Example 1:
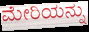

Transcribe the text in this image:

ಮೇರಿಯನ್ನು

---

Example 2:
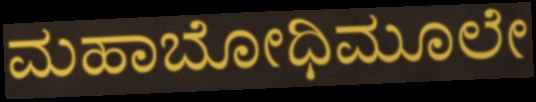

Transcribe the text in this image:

ಮಹಾಬೋಧಿಮೂಲೇ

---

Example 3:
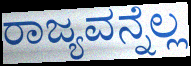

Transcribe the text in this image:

ರಾಜ್ಯವನ್ನೆಲ್ಲ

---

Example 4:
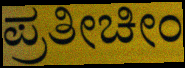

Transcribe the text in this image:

ಪ್ರತೀಚೀಂ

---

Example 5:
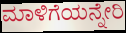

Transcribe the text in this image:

ಮಾಳಿಗೆಯನ್ನೇರಿ